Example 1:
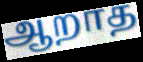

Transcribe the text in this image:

ஆறாத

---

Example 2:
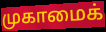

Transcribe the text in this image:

முகாமைக்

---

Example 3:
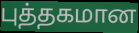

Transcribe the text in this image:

புத்தகமான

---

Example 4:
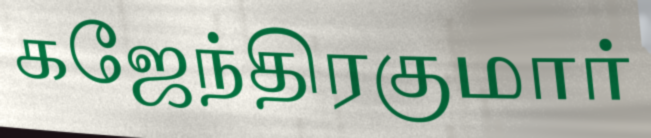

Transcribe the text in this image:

கஜேந்திரகுமார்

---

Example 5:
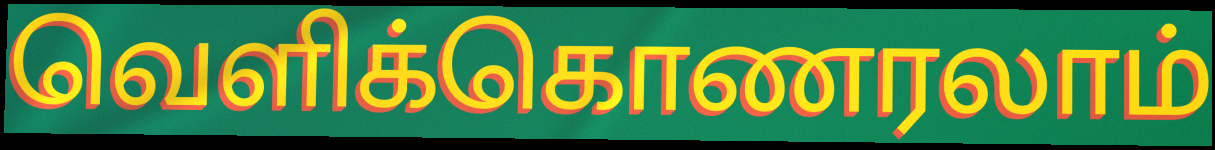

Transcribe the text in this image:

வெளிக்கொணரலாம்